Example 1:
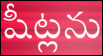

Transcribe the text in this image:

షీట్లను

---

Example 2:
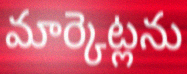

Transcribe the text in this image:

మార్కెట్లను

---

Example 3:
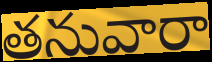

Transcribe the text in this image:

తనువారా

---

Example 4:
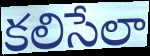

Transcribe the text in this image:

కలిసేలా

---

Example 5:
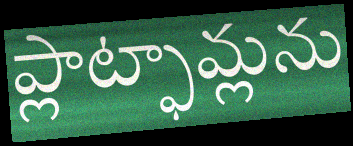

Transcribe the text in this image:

ప్లాట్ఫామ్లను